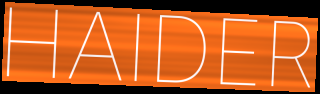
HAIDER